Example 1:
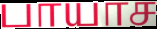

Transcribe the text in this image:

பாயாச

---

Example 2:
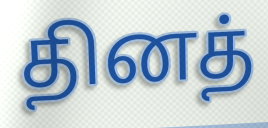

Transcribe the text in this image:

தினத்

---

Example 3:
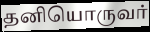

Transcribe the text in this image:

தனியொருவர்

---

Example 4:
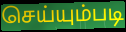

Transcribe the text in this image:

செய்யும்படி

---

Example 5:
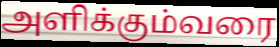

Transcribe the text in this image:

அளிக்கும்வரை